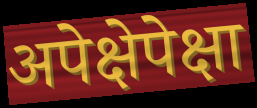
अपेक्षेपेक्षा